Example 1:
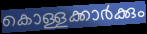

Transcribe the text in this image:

കൊള്ളക്കാർക്കും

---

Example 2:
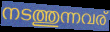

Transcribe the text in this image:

നടത്തുന്നവര്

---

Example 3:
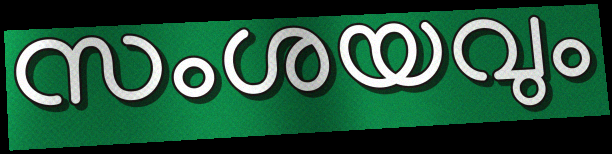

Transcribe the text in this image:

സംശയവും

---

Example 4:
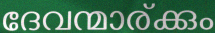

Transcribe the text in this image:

ദേവന്മാര്ക്കും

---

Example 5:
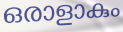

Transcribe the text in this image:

ഒരാളാകും